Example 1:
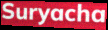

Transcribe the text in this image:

Suryacha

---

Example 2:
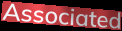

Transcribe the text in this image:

Associated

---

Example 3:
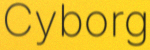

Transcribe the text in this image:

Cyborg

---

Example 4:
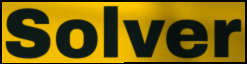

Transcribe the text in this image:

Solver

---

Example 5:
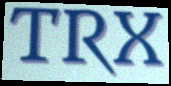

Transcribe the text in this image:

TRX